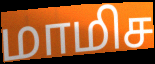
மாமிச